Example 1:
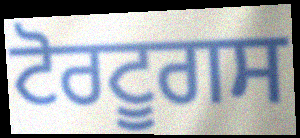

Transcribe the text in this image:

ਟੋਰਟੂਗਸ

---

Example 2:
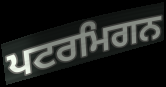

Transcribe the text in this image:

ਪਟਰਮਿਗਨ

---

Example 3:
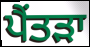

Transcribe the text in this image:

ਪੈਂਤੜਾ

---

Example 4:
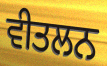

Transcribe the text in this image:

ਵੀਤਲਨ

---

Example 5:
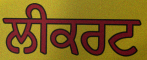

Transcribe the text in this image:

ਲੀਕਰਟ